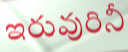
ఇరువురినీ